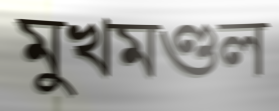
মুখমণ্ডল